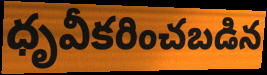
ధృవీకరించబడిన